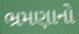
ભ્રમણાનો